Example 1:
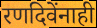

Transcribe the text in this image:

रणदिवेंनाही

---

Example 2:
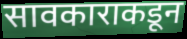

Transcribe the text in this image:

सावकाराकडून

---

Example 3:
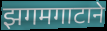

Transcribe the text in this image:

झगमगाटाने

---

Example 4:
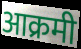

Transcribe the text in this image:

आक्रमी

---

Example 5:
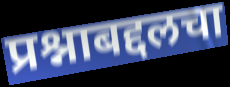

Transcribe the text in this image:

प्रश्नाबद्दलचा